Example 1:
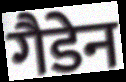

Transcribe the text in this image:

गैडेन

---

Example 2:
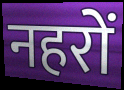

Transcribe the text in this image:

नहरों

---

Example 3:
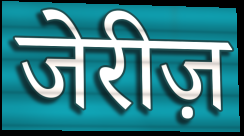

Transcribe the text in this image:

जेरीज़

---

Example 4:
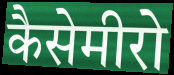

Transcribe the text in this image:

कैसेमीरो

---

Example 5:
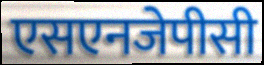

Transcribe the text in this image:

एसएनजेपीसी